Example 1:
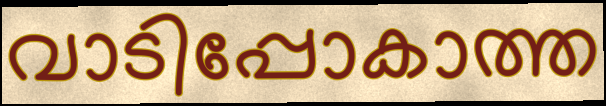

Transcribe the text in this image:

വാടിപ്പോകാത്ത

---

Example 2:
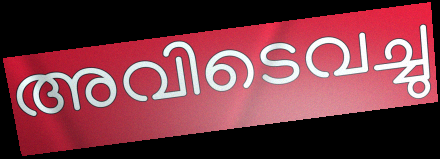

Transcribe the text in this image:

അവിടെവച്ചു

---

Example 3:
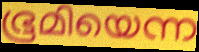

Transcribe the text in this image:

ഭൂമിയെന്ന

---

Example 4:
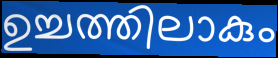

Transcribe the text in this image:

ഉച്ചത്തിലാകും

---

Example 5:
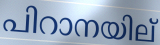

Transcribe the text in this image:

പിറാനയില്